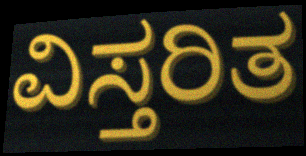
ವಿಸ್ತರಿತ